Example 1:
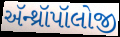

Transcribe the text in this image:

ઍન્થ્રૉપૉલોજી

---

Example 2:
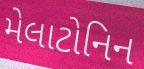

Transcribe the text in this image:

મેલાટોનિન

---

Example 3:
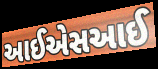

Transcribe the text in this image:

આઈએસઆઈ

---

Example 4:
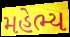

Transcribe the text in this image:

મહેભ્ય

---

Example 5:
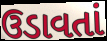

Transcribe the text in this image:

ઉડાવતાં